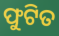
ଫୁଟିତ